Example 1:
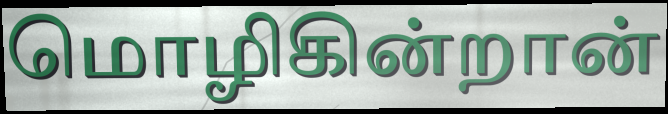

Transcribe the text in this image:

மொழிகின்றான்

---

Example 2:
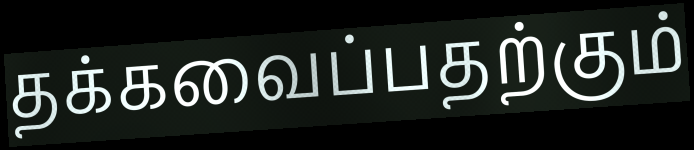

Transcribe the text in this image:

தக்கவைப்பதற்கும்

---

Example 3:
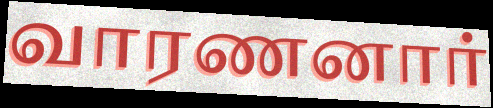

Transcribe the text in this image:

வாரணனார்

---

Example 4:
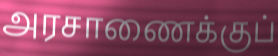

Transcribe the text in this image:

அரசாணைக்குப்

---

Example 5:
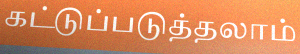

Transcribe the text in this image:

கட்டுப்படுத்தலாம்